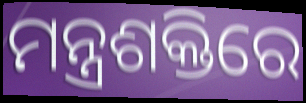
ମନ୍ତ୍ରଶକ୍ତିରେ